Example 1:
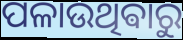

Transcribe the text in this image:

ପଳାଉଥିଵାରୁ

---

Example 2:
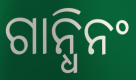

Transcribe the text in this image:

ଗାନ୍ଧିନଂ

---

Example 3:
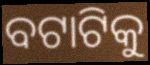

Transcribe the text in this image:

ବଟାଟିକୁ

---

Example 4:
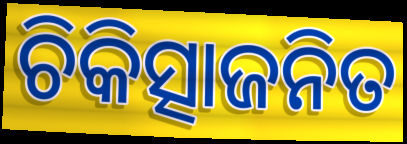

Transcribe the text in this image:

ଚିକିତ୍ସାଜନିତ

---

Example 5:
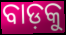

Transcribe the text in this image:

ବାଡ଼କୁ